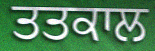
ਤਤਕਾਲ